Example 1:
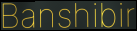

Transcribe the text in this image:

Banshibir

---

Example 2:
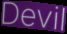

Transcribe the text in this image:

Devil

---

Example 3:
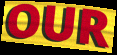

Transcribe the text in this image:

OUR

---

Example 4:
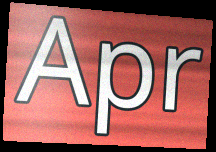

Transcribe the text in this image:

Apr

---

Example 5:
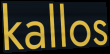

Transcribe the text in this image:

kallos